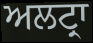
ਅਲਟ੍ਰਾ